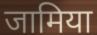
जामिया